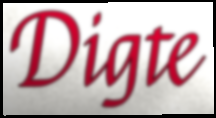
Digte